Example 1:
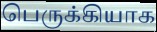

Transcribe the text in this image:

பெருக்கியாக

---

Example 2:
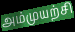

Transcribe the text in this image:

அம்முயற்சி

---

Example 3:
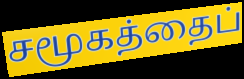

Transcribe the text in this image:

சமூகத்தைப்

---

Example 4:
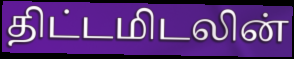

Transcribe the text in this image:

திட்டமிடலின்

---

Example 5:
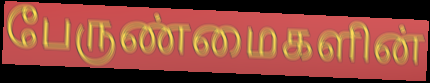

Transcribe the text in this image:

பேருண்மைகளின்